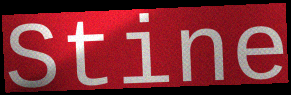
Stine